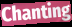
Chanting